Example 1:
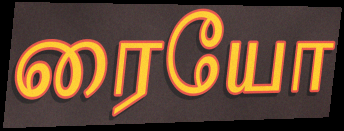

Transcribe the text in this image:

ரையோ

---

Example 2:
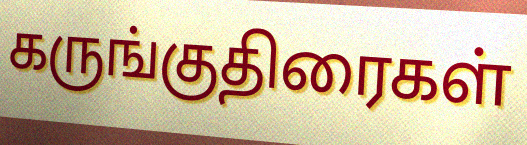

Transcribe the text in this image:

கருங்குதிரைகள்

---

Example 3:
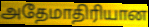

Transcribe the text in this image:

அதேமாதிரியான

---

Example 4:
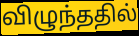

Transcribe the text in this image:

விழுந்ததில்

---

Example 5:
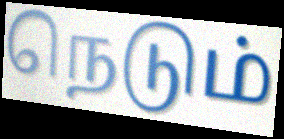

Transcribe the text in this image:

நெடும்